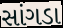
સાંગડા